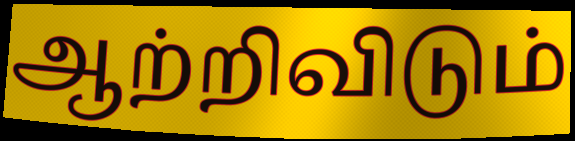
ஆற்றிவிடும்